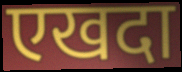
एखदा